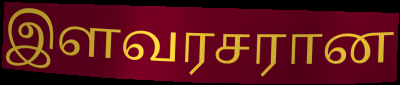
இளவரசரான